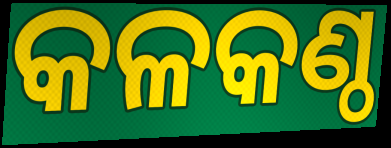
କଳକଣ୍ଠ